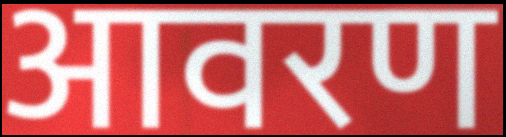
आवरण